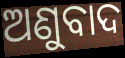
ଅଣୁବାଦ